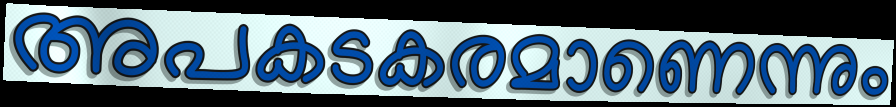
അപകടകരമാണെന്നും